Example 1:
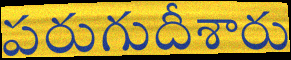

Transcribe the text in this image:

పరుగుదీశారు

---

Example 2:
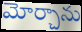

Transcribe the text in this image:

మోర్చాను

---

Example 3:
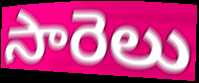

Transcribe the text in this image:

సారెలు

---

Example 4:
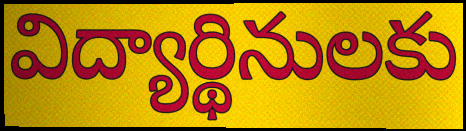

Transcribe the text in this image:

విద్యార్థినులకు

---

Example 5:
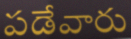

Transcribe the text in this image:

పడేవారు